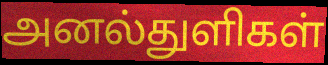
அனல்துளிகள்